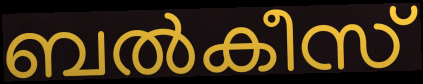
ബൽകീസ്